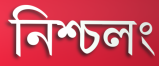
নিশ্চলং